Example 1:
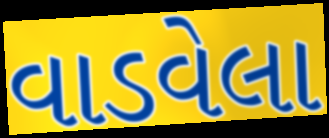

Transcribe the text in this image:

વાડવેલા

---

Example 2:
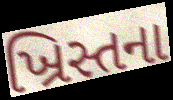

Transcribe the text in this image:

ખ્રિસ્તના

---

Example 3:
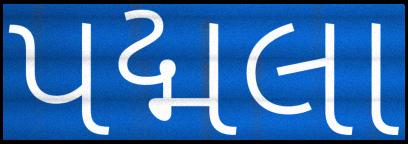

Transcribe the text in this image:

પદ્મલા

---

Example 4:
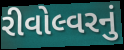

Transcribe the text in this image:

રીવોલ્વરનું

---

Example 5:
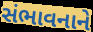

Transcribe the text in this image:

સંભાવનાને